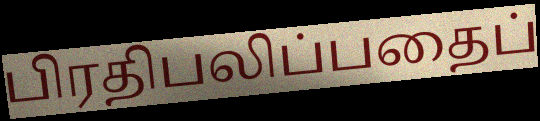
பிரதிபலிப்பதைப்